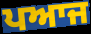
ਪਆਜ